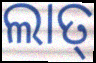
ଲାତ୍